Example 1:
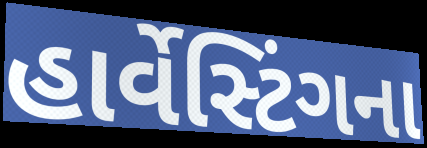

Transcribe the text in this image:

હાર્વેસ્ટિંગના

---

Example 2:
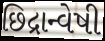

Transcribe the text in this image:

છિદ્રાન્વેષી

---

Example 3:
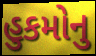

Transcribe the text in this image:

હુકમોનુ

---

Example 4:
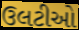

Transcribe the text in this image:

ઉલટીઓ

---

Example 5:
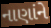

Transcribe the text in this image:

નાણાંને